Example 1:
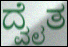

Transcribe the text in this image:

ದ್ವೈತ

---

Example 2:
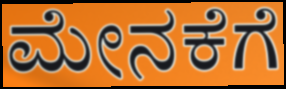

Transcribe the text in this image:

ಮೇನಕೆಗೆ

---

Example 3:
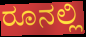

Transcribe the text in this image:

ರೂನಲ್ಲಿ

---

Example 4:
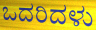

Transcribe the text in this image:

ಒದರಿದಳು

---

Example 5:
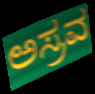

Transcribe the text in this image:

ಅಸ್ರವ